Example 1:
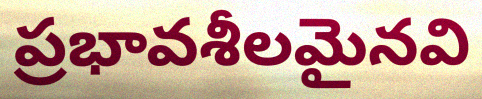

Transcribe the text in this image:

ప్రభావశీలమైనవి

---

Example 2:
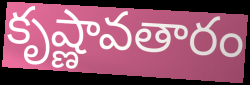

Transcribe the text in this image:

కృష్ణావతారం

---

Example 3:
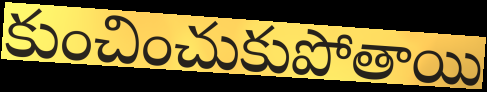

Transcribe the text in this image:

కుంచించుకుపోతాయి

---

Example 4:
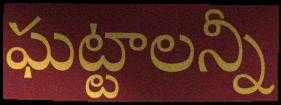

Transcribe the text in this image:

ఘట్టాలన్నీ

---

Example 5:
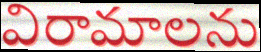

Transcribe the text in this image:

విరామాలను